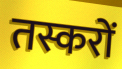
तस्करों